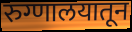
रुग्णालयातून